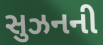
સુઝનની